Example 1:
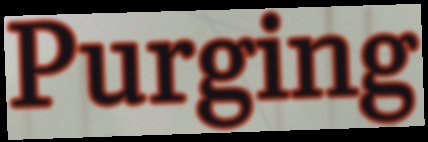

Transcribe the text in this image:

Purging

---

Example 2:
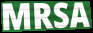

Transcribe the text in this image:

MRSA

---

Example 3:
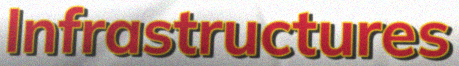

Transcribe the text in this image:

Infrastructures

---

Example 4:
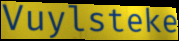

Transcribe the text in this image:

Vuylsteke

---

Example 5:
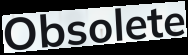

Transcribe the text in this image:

Obsolete